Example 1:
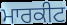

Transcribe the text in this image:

ਮਾਰਕੀਟ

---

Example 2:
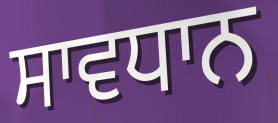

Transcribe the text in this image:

ਸਾਵਧਾਨ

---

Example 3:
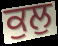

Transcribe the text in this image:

ਕੁਲੁ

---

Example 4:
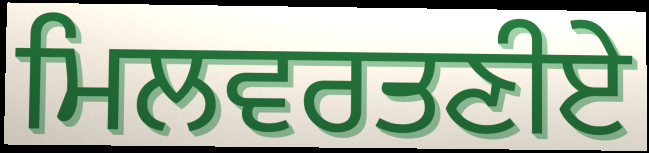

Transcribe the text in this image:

ਮਿਲਵਰਤਣੀਏ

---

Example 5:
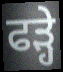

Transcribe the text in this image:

ਫੜ੍ਹੇ